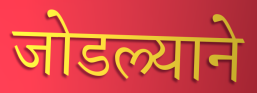
जोडल्याने